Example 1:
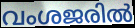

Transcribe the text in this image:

വംശജരിൽ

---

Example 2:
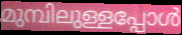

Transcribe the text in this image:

മുമ്പിലുള്ളപ്പോൾ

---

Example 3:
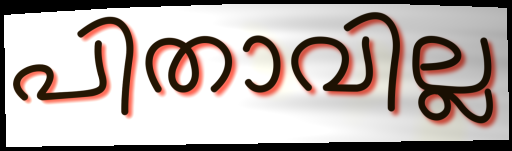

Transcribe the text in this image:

പിതാവില്ല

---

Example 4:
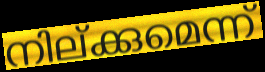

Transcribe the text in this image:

നില്ക്കുമെന്ന്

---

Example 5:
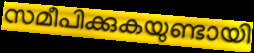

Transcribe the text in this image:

സമീപിക്കുകയുണ്ടായി